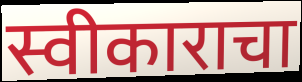
स्वीकाराचा